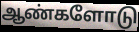
ஆண்களோடு